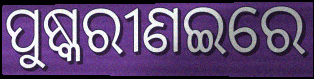
ପୁଷ୍କରୀଣଇରେ